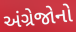
અંગ્રેજોનો